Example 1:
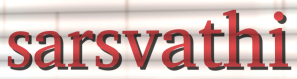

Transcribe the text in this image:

sarsvathi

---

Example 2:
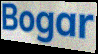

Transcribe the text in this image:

Bogar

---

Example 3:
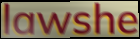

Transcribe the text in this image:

lawshe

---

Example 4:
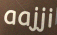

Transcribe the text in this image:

aajji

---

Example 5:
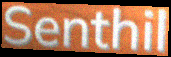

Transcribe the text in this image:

Senthil